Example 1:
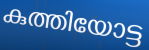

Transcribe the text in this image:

കുത്തിയോട്ട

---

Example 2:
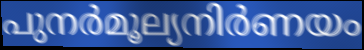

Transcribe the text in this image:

പുനർമൂല്യനിർണയം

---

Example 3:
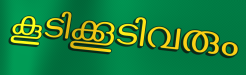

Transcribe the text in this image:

കൂടിക്കൂടിവരും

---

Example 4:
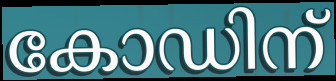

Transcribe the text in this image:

കോഡിന്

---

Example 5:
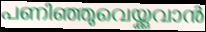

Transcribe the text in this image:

പണിഞ്ഞുവെയ്ക്കുവാൻ